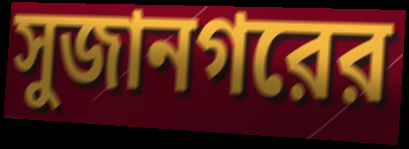
সুজানগরের